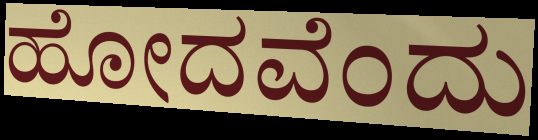
ಹೋದವೆಂದು